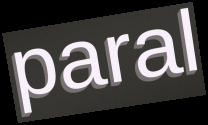
paral